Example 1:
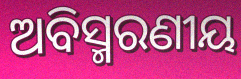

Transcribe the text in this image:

ଅବିସ୍ମରଣୀୟ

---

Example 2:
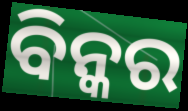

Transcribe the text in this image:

ବିନ୍କର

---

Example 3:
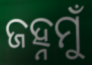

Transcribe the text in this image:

ଜହ୍ନମୁଁ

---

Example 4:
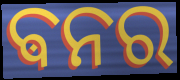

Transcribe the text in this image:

ଵନର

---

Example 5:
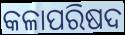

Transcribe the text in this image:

କଳାପରିଷଦ